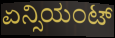
ಏನ್ಸಿಯಂಟ್